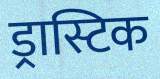
ड्रास्टिक